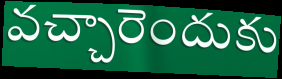
వచ్చారెందుకు